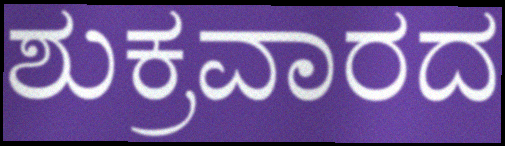
ಶುಕ್ರವಾರದ